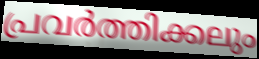
പ്രവർത്തിക്കലും